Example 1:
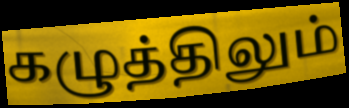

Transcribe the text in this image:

கழுத்திலும்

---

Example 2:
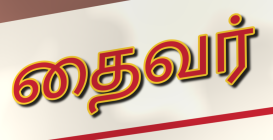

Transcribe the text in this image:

தைவர்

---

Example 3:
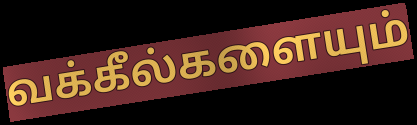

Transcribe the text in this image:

வக்கீல்களையும்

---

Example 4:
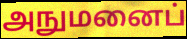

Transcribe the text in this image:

அநுமனைப்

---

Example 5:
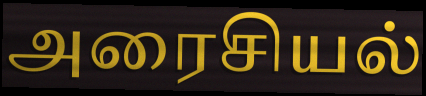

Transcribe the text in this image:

அரைசியல்